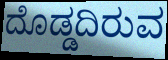
ದೊಡ್ಡದಿರುವ